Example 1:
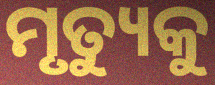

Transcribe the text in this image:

ମୃତ୍ୟୁକୁ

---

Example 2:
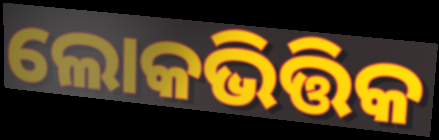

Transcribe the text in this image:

ଲୋକଭିତ୍ତିକ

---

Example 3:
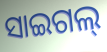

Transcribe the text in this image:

ସାଇଗଲ୍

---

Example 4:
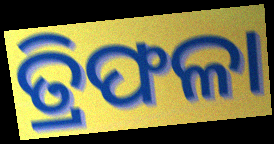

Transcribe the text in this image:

ତ୍ରିଫଳା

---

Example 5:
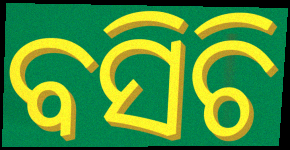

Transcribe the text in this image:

ବସିଚି